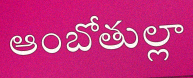
ఆంబోతుల్లా